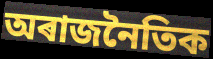
অৰাজনৈতিক